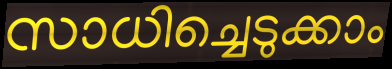
സാധിച്ചെടുക്കാം